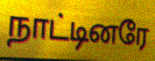
நாட்டினரே